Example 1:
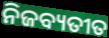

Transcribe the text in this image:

ନିଜବ୍ୟତୀତ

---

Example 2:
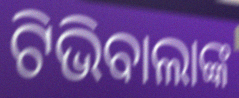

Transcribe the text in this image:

ଟିଭିବାଲାଙ୍କ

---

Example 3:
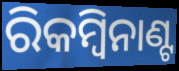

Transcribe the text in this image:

ରିକମ୍ବିନାଣ୍ଟ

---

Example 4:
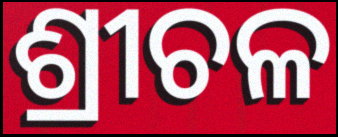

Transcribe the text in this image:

ଶ୍ରୀଚଳ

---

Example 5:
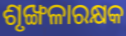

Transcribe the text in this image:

ଶୃଙ୍ଖଳାରକ୍ଷକ